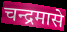
चन्द्रमासे